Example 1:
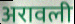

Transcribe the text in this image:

अरावली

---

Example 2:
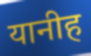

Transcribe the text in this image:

यानीह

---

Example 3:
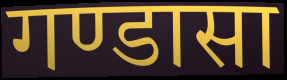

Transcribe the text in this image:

गण्डासा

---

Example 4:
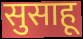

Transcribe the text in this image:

सुसाहू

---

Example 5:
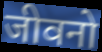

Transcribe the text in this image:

जीवनो